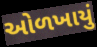
ઓળખાયું